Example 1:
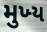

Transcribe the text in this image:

મુખ્‍ય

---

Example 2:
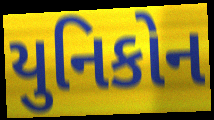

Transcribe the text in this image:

યુનિકોન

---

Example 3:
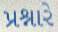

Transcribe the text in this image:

પ્રશ્નારે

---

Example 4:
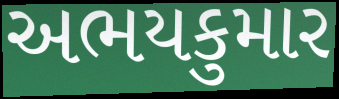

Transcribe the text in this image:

અભયકુમાર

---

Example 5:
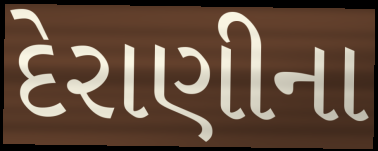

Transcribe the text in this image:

દેરાણીના